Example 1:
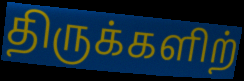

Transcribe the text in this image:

திருக்களிற்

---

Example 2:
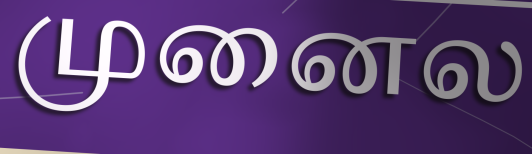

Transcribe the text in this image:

முனைல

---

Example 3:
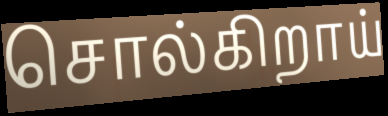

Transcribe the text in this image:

சொல்கிறாய்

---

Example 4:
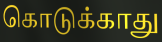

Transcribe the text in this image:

கொடுக்காது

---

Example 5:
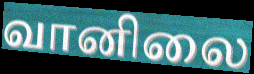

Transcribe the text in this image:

வானிலை